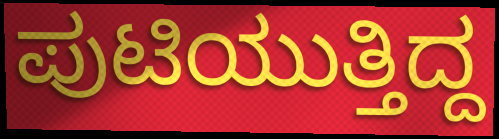
ಪುಟಿಯುತ್ತಿದ್ದ